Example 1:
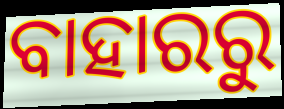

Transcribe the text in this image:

ବାହାରରୁ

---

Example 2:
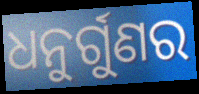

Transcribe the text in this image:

ଧନୁର୍ଗୁଣର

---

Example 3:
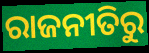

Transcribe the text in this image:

ରାଜନୀତିରୁ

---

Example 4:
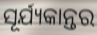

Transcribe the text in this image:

ସୂର୍ଯ୍ୟକାନ୍ତର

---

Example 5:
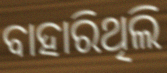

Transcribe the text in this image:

ବାହାରିଥିଲି